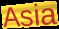
Asia